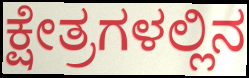
ಕ್ಷೇತ್ರಗಳಲ್ಲಿನ